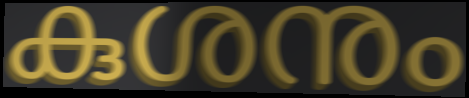
കുശനും